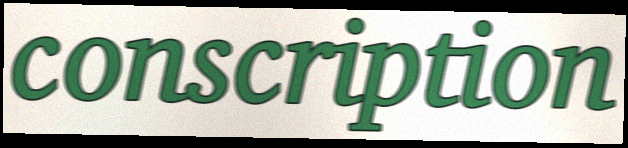
conscription